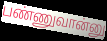
பண்ணுவான்னு